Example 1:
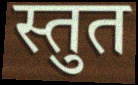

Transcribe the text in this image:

स्तुत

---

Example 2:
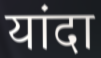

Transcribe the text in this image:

यांदा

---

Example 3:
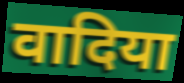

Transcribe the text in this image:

वादिया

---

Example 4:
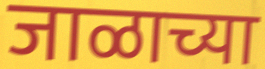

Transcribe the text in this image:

जाळाच्या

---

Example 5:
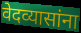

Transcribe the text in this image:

वेदव्यासांना